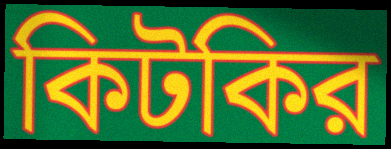
কিটকির